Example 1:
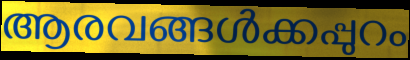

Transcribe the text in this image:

ആരവങ്ങൾക്കപ്പുറം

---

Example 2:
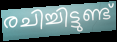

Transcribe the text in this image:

രചിച്ചിട്ടുണ്ട്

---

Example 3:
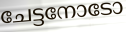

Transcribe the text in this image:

ചേട്ടനോടോ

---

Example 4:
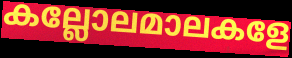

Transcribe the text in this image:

കല്ലോലമാലകളേ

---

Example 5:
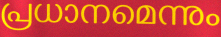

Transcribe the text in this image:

പ്രധാനമെന്നും